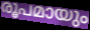
രൂപമായും